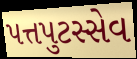
પત્તપુટસ્સેવ